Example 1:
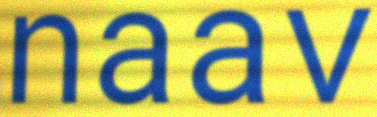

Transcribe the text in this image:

naav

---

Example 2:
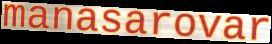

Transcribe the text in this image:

manasarovar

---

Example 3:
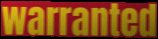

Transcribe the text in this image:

warranted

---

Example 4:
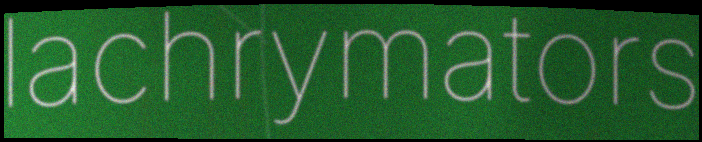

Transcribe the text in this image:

lachrymators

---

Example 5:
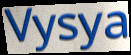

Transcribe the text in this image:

Vysya